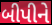
બીપીને